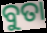
ବୁତା